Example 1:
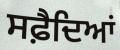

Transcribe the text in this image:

ਸਫ਼ੈਦਿਆਂ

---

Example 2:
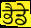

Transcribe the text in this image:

ਭੈਡੇ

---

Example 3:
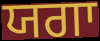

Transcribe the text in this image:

ਯਗਾ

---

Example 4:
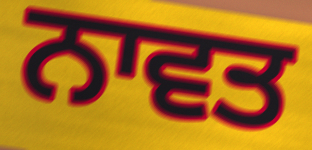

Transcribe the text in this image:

ਨਾਵਤ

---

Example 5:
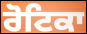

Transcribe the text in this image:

ਰੋਟਿਕਾ